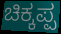
ಚಿಕ್ಕಪ್ಪ